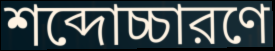
শব্দোচ্চারণে